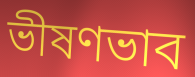
ভীষণভাব